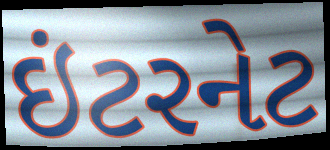
ઇંટરનેટ